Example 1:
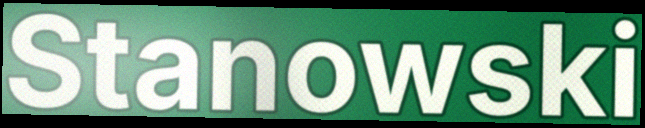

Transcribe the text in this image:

Stanowski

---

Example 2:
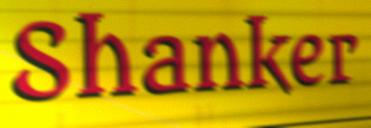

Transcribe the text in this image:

Shanker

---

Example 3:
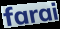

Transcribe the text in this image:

farai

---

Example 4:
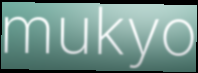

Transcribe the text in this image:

mukyo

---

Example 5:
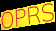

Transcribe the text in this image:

OPRS